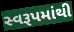
સ્વરૂપમાંથી